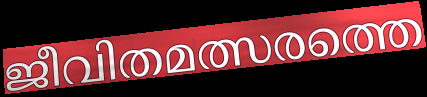
ജീവിതമത്സരത്തെ